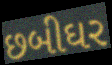
છબીઘર